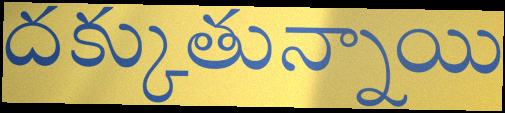
దక్కుతున్నాయి